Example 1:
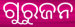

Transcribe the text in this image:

ଗୁରୁଜନ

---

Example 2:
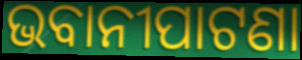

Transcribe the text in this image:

ଭବାନୀପାଟଣା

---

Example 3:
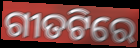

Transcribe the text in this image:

ଗୀତଟିରେ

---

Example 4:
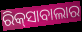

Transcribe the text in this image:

ରିକ୍‌ସାବାଲାର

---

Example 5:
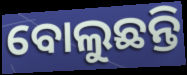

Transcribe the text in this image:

ବୋଲୁଛନ୍ତି